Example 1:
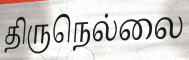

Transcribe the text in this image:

திருநெல்லை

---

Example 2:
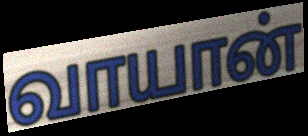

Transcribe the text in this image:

வாயான்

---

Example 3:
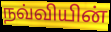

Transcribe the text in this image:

நவ்வியின்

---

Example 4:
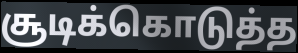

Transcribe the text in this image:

சூடிக்கொடுத்த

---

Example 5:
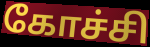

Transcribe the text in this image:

கோச்சி